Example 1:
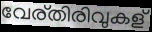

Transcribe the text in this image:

വേര്തിരിവുകള്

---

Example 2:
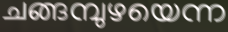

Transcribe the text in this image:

ചങ്ങമ്പുഴയെന്ന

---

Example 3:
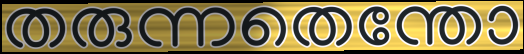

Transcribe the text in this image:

തരുന്നതെന്തോ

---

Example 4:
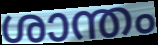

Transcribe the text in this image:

ശാന്തം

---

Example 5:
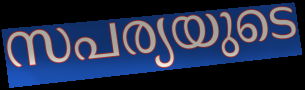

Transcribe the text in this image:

സപര്യയുടെ